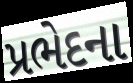
પ્રભેદના